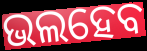
ଭଲହେବ